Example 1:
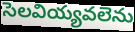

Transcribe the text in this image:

సెలవియ్యవలెను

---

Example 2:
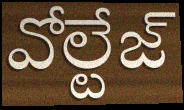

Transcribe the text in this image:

వోల్టేజ్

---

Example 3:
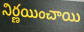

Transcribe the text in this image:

నిర్ణయించాయి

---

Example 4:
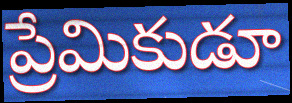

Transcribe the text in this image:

ప్రేమికుడూ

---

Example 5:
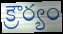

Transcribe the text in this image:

క్రౌర్యం